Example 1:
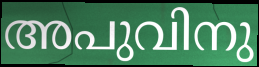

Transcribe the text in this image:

അപുവിനു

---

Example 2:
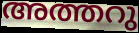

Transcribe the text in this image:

അത്തറു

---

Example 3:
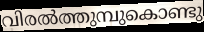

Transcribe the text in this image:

വിരൽത്തുമ്പുകൊണ്ടു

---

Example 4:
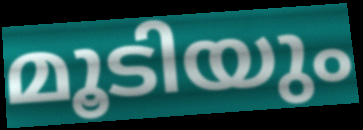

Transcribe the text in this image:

മൂടിയും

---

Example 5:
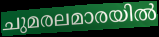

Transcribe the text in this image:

ചുമരലമാരയിൽ